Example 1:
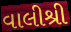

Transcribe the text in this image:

વાલીશ્રી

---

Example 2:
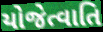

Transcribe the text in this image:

યોજેત્વાતિ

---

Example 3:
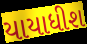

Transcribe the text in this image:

યાયાધીશ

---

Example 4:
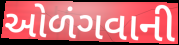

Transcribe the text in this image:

ઓળંગવાની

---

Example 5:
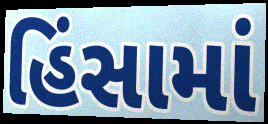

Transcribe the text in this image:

હિંસામાં